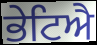
ਭੇਟਿਐ